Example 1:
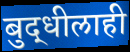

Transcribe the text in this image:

बुद्धीलाही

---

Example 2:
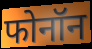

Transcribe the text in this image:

फोनॉन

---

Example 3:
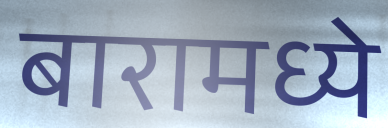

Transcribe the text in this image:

बारामध्ये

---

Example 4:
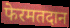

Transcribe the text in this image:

फेरमतदान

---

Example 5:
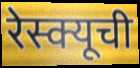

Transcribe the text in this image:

रेस्क्यूची